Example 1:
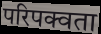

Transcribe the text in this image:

परिपक्वता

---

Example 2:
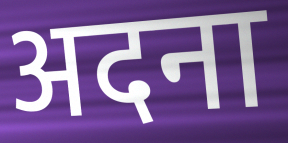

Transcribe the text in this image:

अदना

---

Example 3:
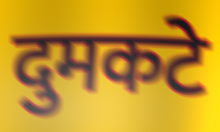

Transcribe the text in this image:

दुमकटे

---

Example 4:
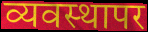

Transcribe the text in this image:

व्यवस्थापर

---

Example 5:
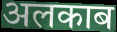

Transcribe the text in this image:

अलकाब